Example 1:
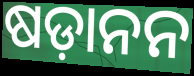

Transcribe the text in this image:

ଷଡ଼ାନନ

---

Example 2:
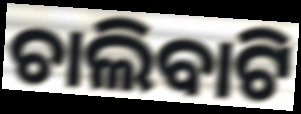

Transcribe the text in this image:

ଚାଲିବାଟି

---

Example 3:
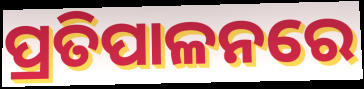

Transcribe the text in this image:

ପ୍ରତିପାଳନରେ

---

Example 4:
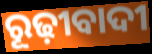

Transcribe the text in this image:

ରୂଢ଼ୀବାଦୀ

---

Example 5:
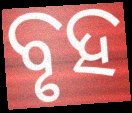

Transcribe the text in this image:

ବୃହ